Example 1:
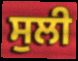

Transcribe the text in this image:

ਸੁਲੀ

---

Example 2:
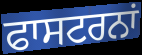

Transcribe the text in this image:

ਫਾਸਟਰਨਾਂ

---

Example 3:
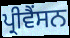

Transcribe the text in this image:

ਪ੍ਰੀਵੈਂਸਨ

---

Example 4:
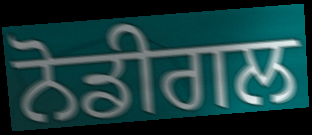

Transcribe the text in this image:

ਨੋਡੀਗਲ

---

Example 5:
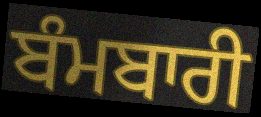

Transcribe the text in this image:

ਬੰਮਬਾਰੀ